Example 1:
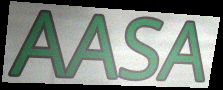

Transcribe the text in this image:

AASA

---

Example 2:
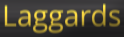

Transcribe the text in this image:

Laggards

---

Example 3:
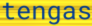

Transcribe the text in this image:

tengas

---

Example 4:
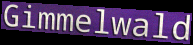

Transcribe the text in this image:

Gimmelwald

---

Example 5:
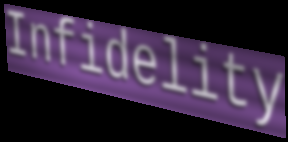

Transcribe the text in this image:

Infidelity